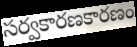
సర్వకారణకారణం